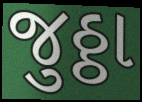
જુઠ્ઠા